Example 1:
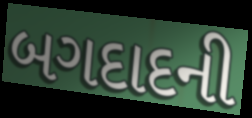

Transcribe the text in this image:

બગદાદની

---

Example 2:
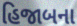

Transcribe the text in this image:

હિજાબના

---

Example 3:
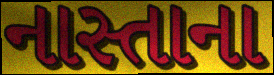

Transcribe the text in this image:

નાસ્તાના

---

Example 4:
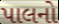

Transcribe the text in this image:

પાલનો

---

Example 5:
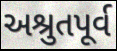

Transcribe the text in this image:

અશ્રુતપૂર્વ